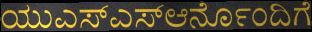
ಯುಎಸ್ಎಸ್ಆರ್ನೊಂದಿಗೆ